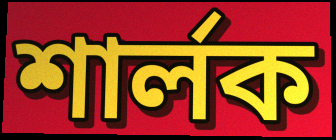
শার্লক